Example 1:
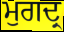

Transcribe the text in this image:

ਮੁਗਦ੍ਰ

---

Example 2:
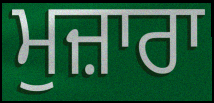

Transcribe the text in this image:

ਮੁਜ਼ਾਰਾ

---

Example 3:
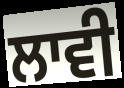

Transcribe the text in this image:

ਲਾਵੀ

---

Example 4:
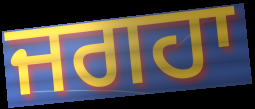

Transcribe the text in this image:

ਜਗਹਾ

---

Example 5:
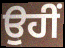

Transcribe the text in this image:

ਉਹੀਂ